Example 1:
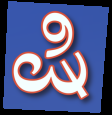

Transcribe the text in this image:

ಷಿ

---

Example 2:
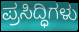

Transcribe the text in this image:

ಪ್ರಸಿದ್ಧಿಗಳು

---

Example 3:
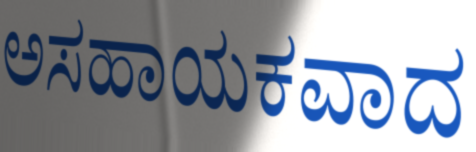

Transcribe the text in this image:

ಅಸಹಾಯಕವಾದ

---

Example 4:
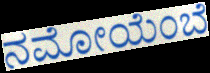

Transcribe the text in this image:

ನಮೋಯೆಂಬೆ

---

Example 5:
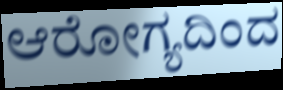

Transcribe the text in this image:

ಆರೋಗ್ಯದಿಂದ